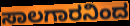
ಸಾಲಗಾರನಿಂದ